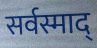
सर्वस्माद्